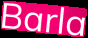
Barla